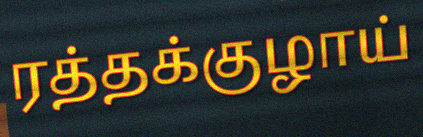
ரத்தக்குழாய்